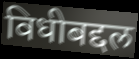
विधीबद्दल